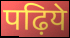
पढ़िये